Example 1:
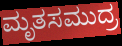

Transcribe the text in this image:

ಮೃತಸಮುದ್ರ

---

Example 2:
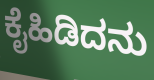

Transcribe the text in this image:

ಕೈಹಿಡಿದನು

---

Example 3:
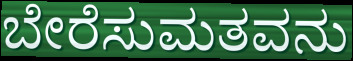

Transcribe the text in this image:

ಬೇರೆಸುಮತವನು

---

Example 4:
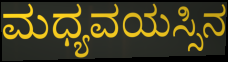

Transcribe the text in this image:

ಮಧ್ಯವಯಸ್ಸಿನ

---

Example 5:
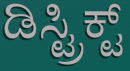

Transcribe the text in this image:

ಡಿಸ್ಟ್ರಿಕ್ಟ್